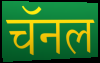
चॅनल